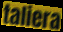
taliera